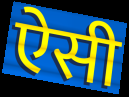
ऐसी